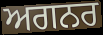
ਅਗਨਰ